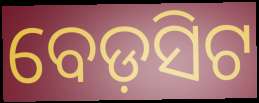
ବେଡ଼ସିଟ